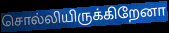
சொல்லியிருக்கிறேனா